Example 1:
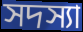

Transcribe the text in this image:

সদস্যা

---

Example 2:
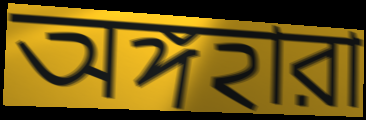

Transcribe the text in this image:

অঙ্গহারা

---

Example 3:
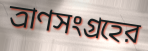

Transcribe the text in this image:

ত্রাণসংগ্রহের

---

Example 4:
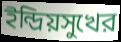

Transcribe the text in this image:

ইন্দ্রিয়সুখের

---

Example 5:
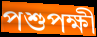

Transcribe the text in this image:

পশুপক্ষী